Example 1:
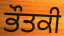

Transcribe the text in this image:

ਭੌਤਕੀ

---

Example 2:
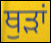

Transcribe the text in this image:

ਥੁੜਾਂ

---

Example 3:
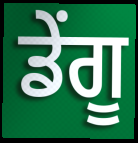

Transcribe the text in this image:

ਡੇਂਗੂ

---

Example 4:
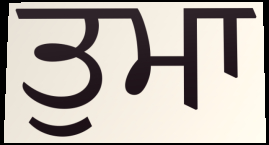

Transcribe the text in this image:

ਤੁਮਾ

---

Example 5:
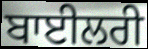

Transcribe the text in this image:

ਬਾਈਲਰੀ